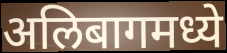
अलिबागमध्ये